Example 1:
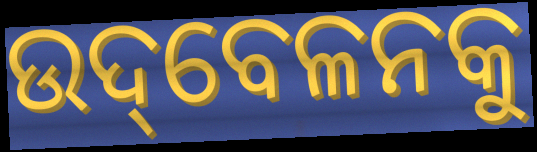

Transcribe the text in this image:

ଉଦ୍‌ବେଳନକୁ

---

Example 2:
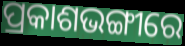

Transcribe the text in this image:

ପ୍ରକାଶଭଙ୍ଗୀରେ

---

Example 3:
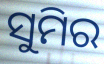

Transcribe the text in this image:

ସୁମିର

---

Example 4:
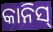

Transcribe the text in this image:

କାନିସ୍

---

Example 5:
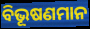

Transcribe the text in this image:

ବିଭୂଷଣମାନ